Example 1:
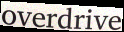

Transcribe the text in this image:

overdrive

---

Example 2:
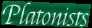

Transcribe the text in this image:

Platonists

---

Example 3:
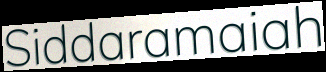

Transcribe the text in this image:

Siddaramaiah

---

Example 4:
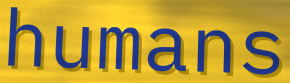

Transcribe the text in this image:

humans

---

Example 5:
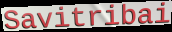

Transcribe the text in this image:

Savitribai